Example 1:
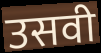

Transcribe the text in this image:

उसवी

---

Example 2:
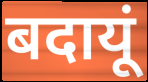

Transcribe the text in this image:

बदायूं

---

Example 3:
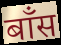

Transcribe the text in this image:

बाँस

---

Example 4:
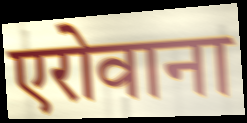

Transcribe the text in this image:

एरोवाना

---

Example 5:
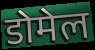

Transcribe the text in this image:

डोमेल